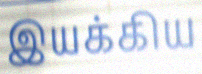
இயக்கிய